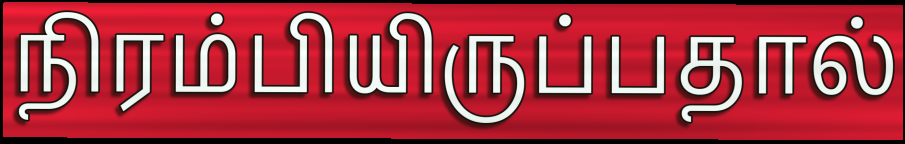
நிரம்பியிருப்பதால்